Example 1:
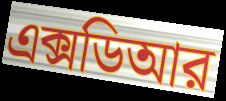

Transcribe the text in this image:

এক্সডিআর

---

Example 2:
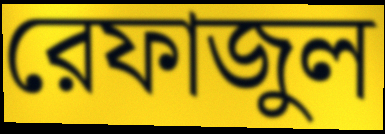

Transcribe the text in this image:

রেফাজুল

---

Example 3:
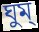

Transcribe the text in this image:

ঘুম্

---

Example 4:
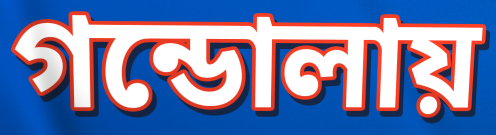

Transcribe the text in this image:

গন্ডোলায়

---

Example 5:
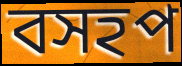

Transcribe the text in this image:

বসহপ